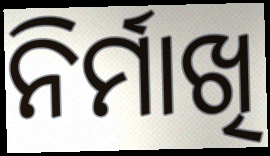
ନିର୍ମାଖି